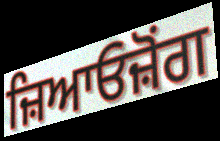
ਜ਼ਿਆਓਜ਼ੋਂਗ